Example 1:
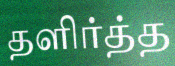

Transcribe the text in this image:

தளிர்த்த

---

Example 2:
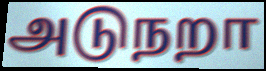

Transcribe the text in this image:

அடுநறா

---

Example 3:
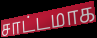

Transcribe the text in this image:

சாட்டமாக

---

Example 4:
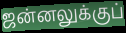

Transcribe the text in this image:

ஜன்னலுக்குப்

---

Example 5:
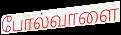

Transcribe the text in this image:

போல்வாளை